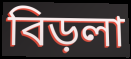
বিড়লা